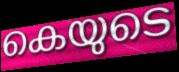
കെയുടെ